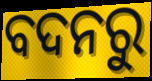
ବଦନରୁ